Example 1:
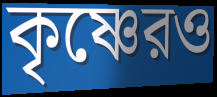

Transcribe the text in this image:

কৃষ্ণেরও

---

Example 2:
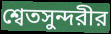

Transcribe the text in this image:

শ্বেতসুন্দরীর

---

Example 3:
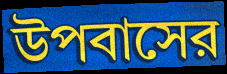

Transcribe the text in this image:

উপবাসের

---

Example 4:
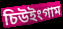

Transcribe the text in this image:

চিউইংগাম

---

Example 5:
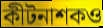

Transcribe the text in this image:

কীটনাশকও